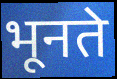
भूनते